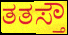
ತತಸ್ತೌ